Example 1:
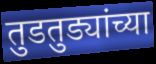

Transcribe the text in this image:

तुडतुड्यांच्या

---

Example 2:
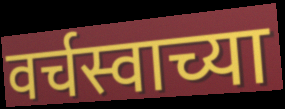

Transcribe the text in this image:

वर्चस्वाच्या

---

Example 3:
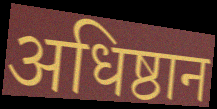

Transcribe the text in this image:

अधिष्ठान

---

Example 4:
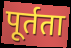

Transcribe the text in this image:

पूर्तता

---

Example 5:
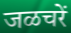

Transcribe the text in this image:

जळचरें